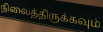
நிலைத்திருக்கவும்